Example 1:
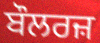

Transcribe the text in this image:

ਬੌਲਰਜ਼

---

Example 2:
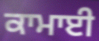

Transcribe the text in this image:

ਕਾਮਾਈ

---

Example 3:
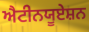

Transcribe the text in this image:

ਐਟੀਨਯੂਏਸ਼ਨ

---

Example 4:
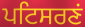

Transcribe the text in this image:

ਪਟਿਸਰਣਂ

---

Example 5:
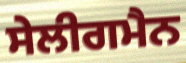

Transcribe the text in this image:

ਸੇਲੀਗਮੈਨ